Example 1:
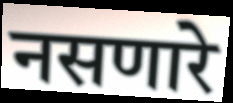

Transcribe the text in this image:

नसणारे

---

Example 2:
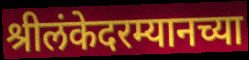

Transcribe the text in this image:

श्रीलंकेदरम्यानच्या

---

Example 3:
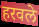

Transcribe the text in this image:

हरवले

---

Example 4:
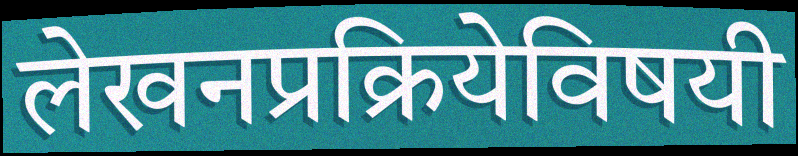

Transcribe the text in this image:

लेखनप्रक्रियेविषयी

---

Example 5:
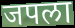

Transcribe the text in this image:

जपला